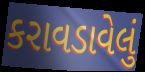
કરાવડાવેલું